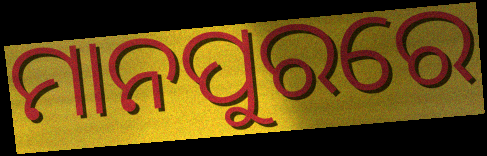
ମାନପୁରରେ